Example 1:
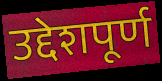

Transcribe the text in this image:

उद्देशपूर्ण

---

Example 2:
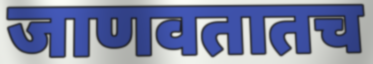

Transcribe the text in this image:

जाणवतातच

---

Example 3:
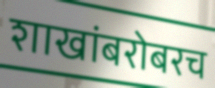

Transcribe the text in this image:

शाखांबरोबरच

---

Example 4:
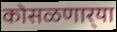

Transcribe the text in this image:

कोसळणार्‍या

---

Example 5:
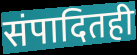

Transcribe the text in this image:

संपादितही